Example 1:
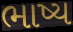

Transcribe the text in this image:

ભાષ્ય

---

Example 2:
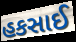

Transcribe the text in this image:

હકસાઈ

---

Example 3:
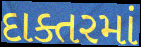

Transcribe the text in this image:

દાક્તરમાં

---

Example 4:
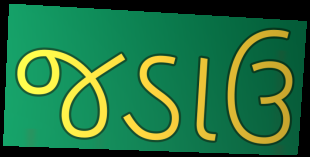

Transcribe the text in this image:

જડાઉ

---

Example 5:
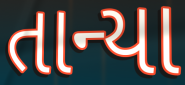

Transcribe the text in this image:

તાન્યા